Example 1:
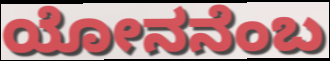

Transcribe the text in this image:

ಯೋನನೆಂಬ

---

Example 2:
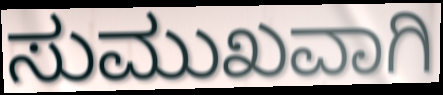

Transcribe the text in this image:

ಸುಮುಖವಾಗಿ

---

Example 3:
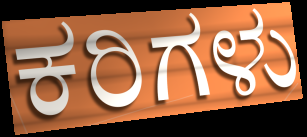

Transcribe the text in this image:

ಕರಿಗಳು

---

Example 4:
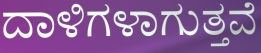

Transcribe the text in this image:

ದಾಳಿಗಳಾಗುತ್ತವೆ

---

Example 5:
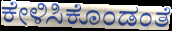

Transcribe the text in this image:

ಕೇಳಿಸಿಕೊಂಡಂತೆ